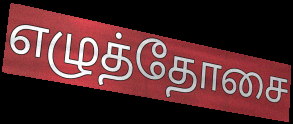
எழுத்தோசை